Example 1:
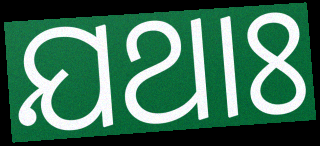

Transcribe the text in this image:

ଯଥାଃ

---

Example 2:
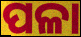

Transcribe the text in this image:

ପଳା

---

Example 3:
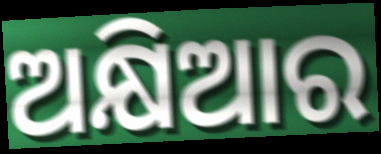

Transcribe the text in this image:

ଅକ୍ଷିଆର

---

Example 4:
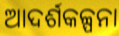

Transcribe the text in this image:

ଆଦର୍ଶକଳ୍ପନା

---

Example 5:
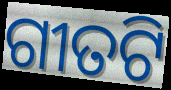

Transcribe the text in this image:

ଗୀତଟି